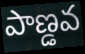
పాణ్డవ